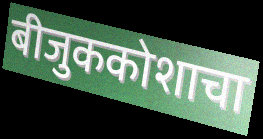
बीजुककोशाचा